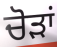
ਚੋੜਾਂ